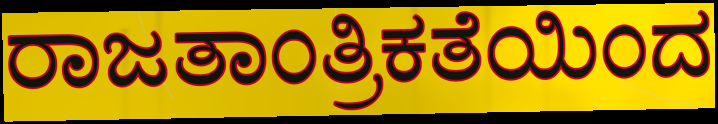
ರಾಜತಾಂತ್ರಿಕತೆಯಿಂದ